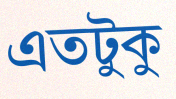
এতটুকু